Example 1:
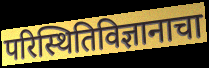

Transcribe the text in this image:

परिस्थितिविज्ञानाचा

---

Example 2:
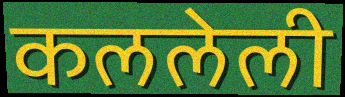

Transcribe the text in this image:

कललेली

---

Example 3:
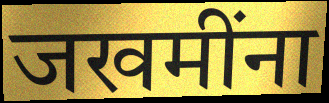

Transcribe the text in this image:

जखमींना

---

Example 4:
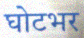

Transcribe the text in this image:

घोटभर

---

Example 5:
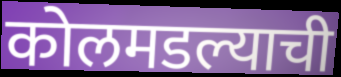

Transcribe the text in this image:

कोलमडल्याची